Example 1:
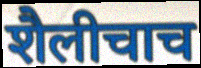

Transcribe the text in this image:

शैलीचाच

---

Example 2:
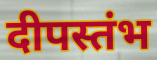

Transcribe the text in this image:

दीपस्तंभ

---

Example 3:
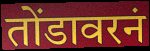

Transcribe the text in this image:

तोंडावरनं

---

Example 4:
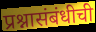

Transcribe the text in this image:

प्रश्नासंबंधीची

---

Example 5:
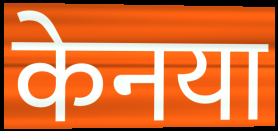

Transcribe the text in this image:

केनया